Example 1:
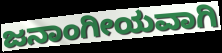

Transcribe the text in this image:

ಜನಾಂಗೀಯವಾಗಿ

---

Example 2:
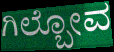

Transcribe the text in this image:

ಗಿಲ್ಬೋವ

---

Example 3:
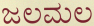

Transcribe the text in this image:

ಜಲಮಲ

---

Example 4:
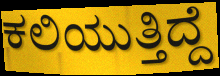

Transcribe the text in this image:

ಕಲಿಯುತ್ತಿದ್ದೆ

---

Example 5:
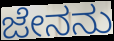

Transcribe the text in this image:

ಜೇನನು